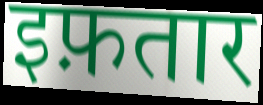
इफ़तार